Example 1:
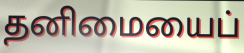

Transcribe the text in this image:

தனிமையைப்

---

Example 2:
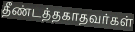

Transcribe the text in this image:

தீண்டத்தகாதவர்கள்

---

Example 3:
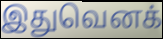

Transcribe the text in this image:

இதுவெனக்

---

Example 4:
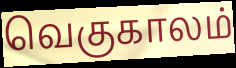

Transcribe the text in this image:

வெகுகாலம்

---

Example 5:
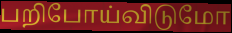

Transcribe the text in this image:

பறிபோய்விடுமோ